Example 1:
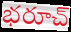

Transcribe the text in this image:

భరూచ్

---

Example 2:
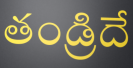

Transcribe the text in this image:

తండ్రిదే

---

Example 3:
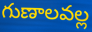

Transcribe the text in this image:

గుణాలవల్ల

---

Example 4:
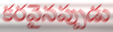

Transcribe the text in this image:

కరవైనప్పుడు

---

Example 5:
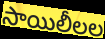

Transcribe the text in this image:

సాయిలీలల